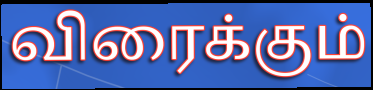
விரைக்கும்